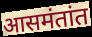
आसमंतांत